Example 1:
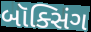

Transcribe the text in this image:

બૉક્સિંગ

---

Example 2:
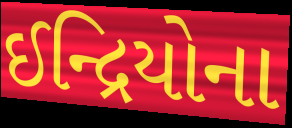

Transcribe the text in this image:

ઈન્દ્રિયોના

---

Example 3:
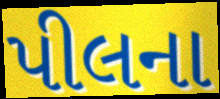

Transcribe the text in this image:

પીલના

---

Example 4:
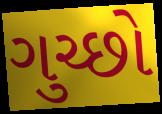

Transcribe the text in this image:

ગુચ્છો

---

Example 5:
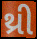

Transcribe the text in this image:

થ્રી